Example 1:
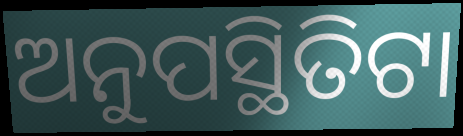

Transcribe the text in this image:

ଅନୁପସ୍ଥିତିଟା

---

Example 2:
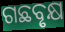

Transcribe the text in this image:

ଗଛବୃକ୍ଷ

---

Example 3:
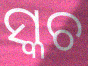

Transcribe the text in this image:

ସ୍କଚ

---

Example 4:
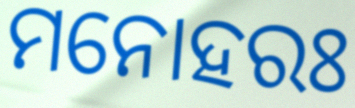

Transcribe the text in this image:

ମନୋହରଃ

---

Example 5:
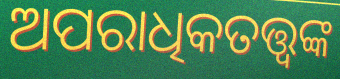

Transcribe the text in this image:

ଅପରାଧିକତତ୍ତ୍ୱଙ୍କ